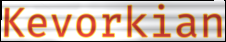
Kevorkian